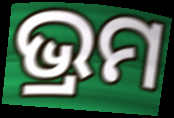
ଭ୍ରମ